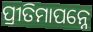
ପ୍ରୀତିମାପନ୍ନେ